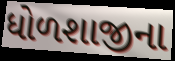
ધોળશાજીના